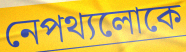
নেপথ্যলোকে